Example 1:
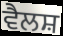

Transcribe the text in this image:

ਵੈਲਸ਼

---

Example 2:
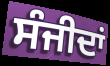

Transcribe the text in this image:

ਸੰਜੀਦਾਂ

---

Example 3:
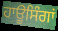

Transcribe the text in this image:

ਹਾਊਸਿੰਗਾਂ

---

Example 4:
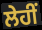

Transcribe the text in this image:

ਲੇਹੀਂ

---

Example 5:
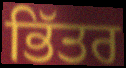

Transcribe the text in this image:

ਭਿੱਤਰ